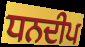
ਧਨਦੀਪ